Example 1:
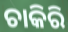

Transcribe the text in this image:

ଚାକିରି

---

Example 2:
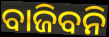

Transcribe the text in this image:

ବାଜିବନି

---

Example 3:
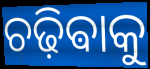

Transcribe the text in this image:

ଚଢ଼ିଵାକୁ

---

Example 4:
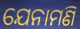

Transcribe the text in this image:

ଯେନାମଣି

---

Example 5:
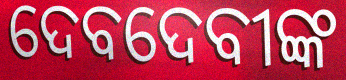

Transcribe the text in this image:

ଦେବଦେବୀଙ୍କ